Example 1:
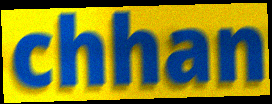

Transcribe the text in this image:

chhan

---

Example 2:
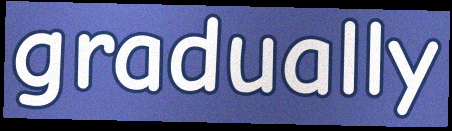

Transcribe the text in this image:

gradually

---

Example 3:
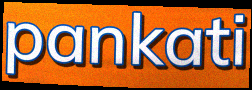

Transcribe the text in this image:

pankati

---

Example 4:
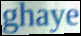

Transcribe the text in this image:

ghaye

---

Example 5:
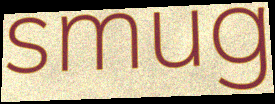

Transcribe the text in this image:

smug